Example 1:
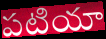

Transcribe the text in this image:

పటియా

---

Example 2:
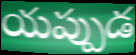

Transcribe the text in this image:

యప్పుడ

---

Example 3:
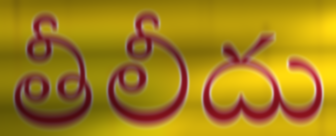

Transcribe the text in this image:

తీలీదు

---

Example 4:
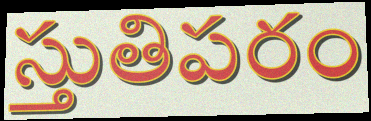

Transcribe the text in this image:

స్తుతిపరం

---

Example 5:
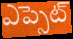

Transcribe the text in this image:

ఎప్సెట్